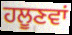
ਹਲੂਣਵਾਂ